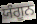
ਯੰਗੂਨ